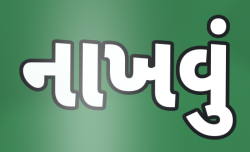
નાખવું